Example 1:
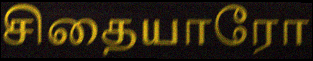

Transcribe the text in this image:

சிதையாரோ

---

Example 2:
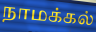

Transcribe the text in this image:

நாமக்கல்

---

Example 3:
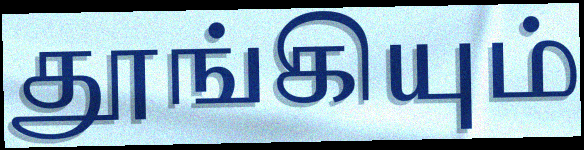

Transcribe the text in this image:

தூங்கியும்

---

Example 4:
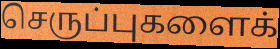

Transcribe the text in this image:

செருப்புகளைக்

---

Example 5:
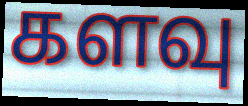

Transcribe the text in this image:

களவு